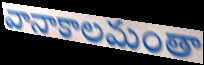
వానాకాలమంతా